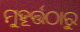
ମୁହୂର୍ତ୍ତଠାରୁ